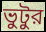
ভুটুর